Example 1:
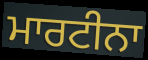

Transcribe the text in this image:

ਮਾਰਟੀਨਾ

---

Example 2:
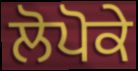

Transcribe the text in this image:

ਲੋਪੋਕੇ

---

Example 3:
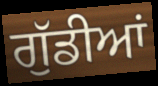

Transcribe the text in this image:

ਗੁੱਡੀਆਂ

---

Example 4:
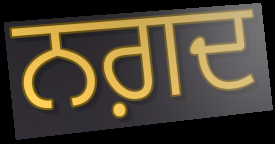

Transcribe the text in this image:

ਨਗ਼ਦ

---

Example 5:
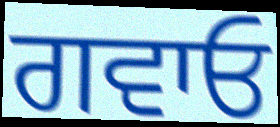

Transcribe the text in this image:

ਗਵਾਓ